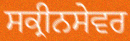
ਸਕ੍ਰੀਨਸੇਵਰ